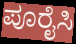
ಪೂರೈಸಿ